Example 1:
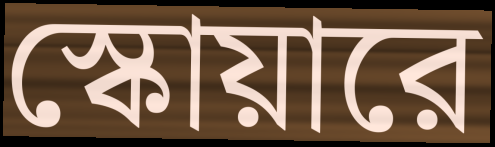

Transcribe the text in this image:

স্কোয়ারে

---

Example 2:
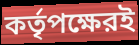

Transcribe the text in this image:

কর্তৃপক্ষেরই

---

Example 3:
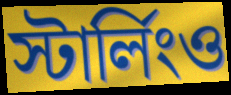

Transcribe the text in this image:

স্টার্লিংও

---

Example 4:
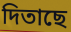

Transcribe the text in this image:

দিতাছে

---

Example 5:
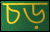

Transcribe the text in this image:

চড়